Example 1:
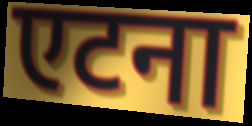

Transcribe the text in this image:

एटना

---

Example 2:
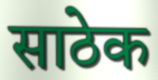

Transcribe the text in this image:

साठेक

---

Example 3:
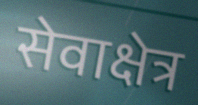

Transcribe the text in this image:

सेवाक्षेत्र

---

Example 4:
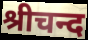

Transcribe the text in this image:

श्रीचन्द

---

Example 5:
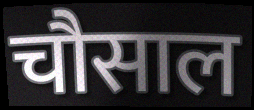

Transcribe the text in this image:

चौसाल